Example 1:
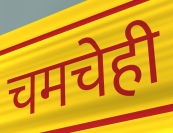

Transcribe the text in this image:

चमचेही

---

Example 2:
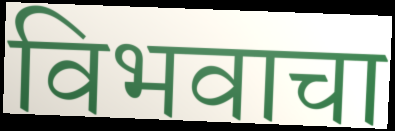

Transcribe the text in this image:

विभवाचा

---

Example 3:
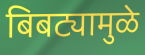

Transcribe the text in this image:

बिबट्यामुळे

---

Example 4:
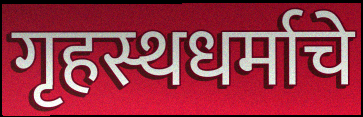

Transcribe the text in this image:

गृहस्थधर्माचे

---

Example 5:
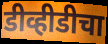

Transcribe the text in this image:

डीव्हीडीचा